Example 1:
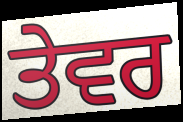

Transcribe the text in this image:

ਤੇਵਰ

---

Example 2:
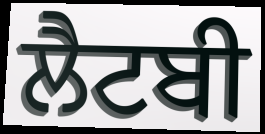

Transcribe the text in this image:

ਲੈਟਬੀ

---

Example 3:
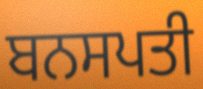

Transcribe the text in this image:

ਬਨਸਪਤੀ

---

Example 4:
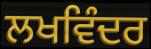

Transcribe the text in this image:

ਲਖਵਿੰਦਰ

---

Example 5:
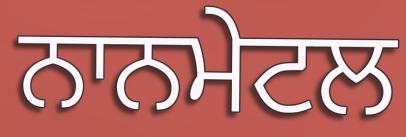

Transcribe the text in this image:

ਨਾਨਮੇਟਲ